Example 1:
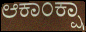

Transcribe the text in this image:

ಆಕಾಂಕ್ಷಾ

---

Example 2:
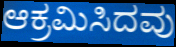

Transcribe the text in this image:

ಆಕ್ರಮಿಸಿದವು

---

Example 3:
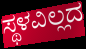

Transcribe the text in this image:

ಸ್ಥಳವಿಲ್ಲದ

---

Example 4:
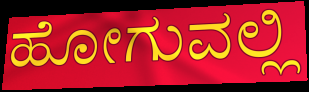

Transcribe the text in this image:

ಹೋಗುವಲ್ಲಿ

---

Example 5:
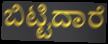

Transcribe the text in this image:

ಬಿಟ್ಟಿದಾರೆ